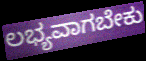
ಲಭ್ಯವಾಗಬೇಕು